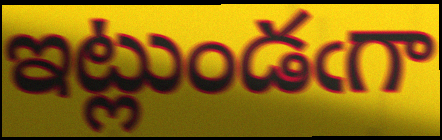
ఇట్లుండఁగా